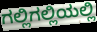
ಗಲ್ಲಿಗಲ್ಲಿಯಲ್ಲಿ